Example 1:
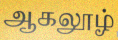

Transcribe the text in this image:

ஆகலூழ்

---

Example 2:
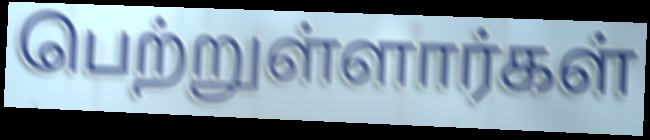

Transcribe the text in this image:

பெற்றுள்ளார்கள்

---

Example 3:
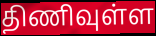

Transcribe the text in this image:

திணிவுள்ள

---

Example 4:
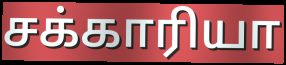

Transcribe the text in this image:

சக்காரியா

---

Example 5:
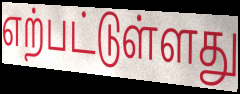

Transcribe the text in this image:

எற்பட்டுள்ளது